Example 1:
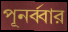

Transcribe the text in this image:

পূনর্ব্বার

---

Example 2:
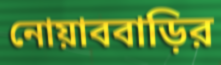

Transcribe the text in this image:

নোয়াববাড়ির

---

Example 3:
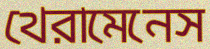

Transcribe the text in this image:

থেরামেনেস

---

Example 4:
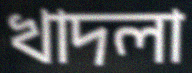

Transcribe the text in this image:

খাদলা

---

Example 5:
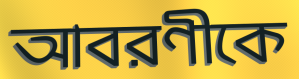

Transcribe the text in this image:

আবরণীকে